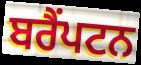
ਬਰੈਂਪਟਨ